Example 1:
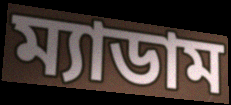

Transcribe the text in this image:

ম্যাডাম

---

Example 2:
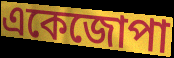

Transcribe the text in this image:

একেজোপা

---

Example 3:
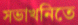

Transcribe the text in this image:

সভাখনিতে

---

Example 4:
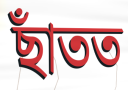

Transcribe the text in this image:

ছাঁতত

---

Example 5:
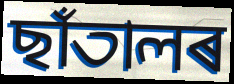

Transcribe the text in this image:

ছাঁতালৰ